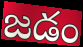
జడం